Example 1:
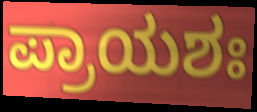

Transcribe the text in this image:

ಪ್ರಾಯಶಃ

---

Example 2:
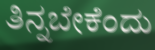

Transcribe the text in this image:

ತಿನ್ನಬೇಕೆಂದು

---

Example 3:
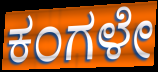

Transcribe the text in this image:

ಕಂಗಳೇ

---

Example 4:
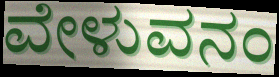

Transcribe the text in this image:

ವೇಳುವನಂ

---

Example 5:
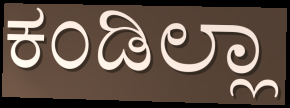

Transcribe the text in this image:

ಕಂಡಿಲ್ಲಾ